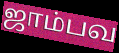
ஜாம்பவ